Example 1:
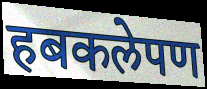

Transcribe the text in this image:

हबकलेपण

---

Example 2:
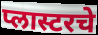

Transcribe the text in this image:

प्लास्टरचे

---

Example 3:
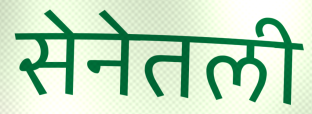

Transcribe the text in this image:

सेनेतली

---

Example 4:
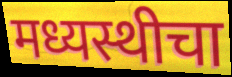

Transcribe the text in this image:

मध्यस्थीचा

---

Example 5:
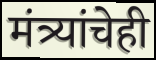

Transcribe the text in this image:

मंत्र्यांचेही